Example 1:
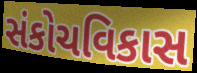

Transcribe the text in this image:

સંકોચવિકાસ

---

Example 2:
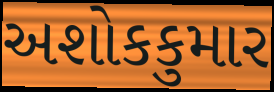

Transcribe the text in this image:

અશોકકુમાર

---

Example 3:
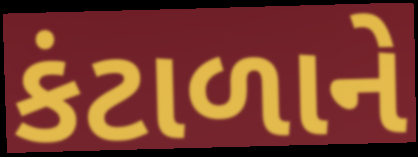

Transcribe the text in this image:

કંટાળાને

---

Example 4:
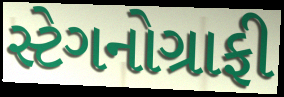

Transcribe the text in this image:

સ્ટેગનોગ્રાફી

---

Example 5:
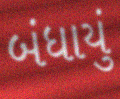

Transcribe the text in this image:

બંધાયું